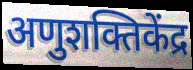
अणुशक्तिकेंद्र